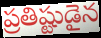
ప్రతిష్టుడైన